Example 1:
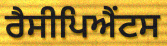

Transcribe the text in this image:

ਰੈਸੀਪਿਐਂਟਸ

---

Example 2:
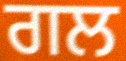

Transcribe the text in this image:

ਗਲ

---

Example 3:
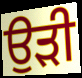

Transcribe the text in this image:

ਉਡ਼ੀ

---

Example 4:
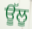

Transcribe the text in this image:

ਊੱਲੂ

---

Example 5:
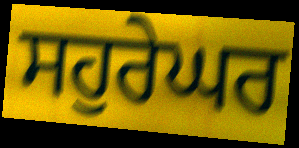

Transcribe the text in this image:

ਸਹੁਰੇਘਰ